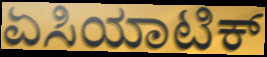
ಏಸಿಯಾಟಿಕ್